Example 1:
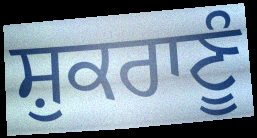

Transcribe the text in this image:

ਸ਼ੁਕਰਾਣੂੰ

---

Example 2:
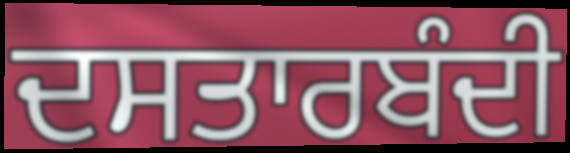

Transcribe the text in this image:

ਦਸਤਾਰਬੰਦੀ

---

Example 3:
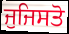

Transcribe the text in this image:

ਜੁਜਿਸਤੋ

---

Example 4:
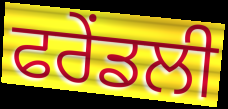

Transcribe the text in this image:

ਫਰੇਂਡਲੀ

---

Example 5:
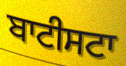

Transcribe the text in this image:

ਬਾਟੀਸਟਾ